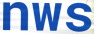
nws